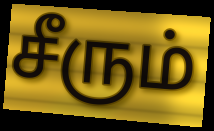
சீரும்